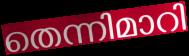
തെന്നിമാറി